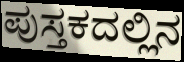
ಪುಸ್ತಕದಲ್ಲಿನ